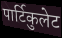
पार्टिकुलेट